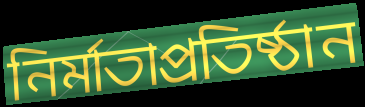
নির্মাতাপ্রতিষ্ঠান